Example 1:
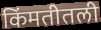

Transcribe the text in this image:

किंमतीतली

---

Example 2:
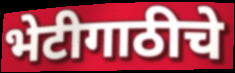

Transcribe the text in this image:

भेटीगाठीचे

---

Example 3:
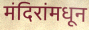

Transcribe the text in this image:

मंदिरांमधून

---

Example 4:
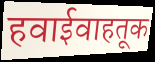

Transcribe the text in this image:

हवाईवाहतूक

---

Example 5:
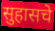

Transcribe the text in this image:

सुहासचे